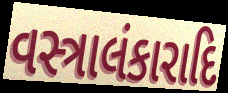
વસ્ત્રાલંકારાદિ